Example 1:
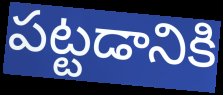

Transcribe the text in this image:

పట్టడానికి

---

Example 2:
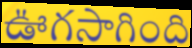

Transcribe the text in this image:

ఊగసాగింది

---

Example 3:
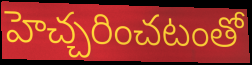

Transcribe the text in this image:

హెచ్చరించటంతో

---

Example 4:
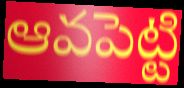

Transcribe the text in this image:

ఆవపెట్టి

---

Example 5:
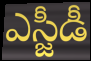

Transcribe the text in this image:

ఎస్జీడీ